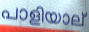
പാളിയാല്